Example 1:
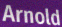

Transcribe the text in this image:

Arnold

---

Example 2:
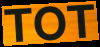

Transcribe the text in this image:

TOT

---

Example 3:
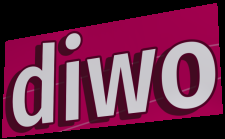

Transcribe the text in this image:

diwo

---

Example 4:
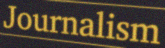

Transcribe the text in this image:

Journalism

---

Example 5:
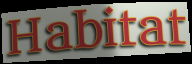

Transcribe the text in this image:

Habitat